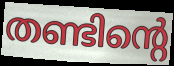
തണ്ടിന്റെ